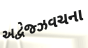
અદ્વેજ્ઝવચના